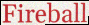
Fireball